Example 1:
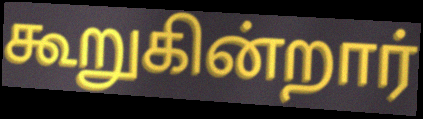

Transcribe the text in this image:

கூறுகின்றார்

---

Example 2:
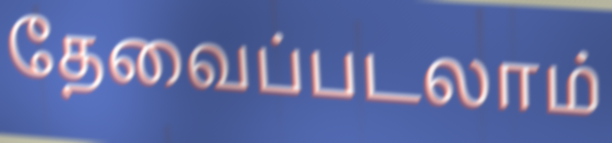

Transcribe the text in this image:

தேவைப்படலாம்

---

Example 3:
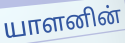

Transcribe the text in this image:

யாளனின்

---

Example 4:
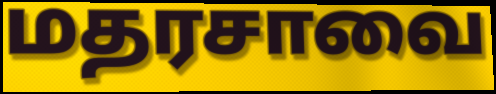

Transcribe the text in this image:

மதரசாவை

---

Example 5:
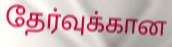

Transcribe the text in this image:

தேர்வுக்கான